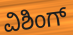
ವಿಶಿಂಗ್